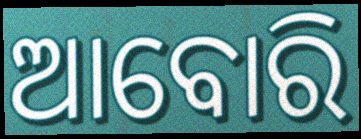
ଆବୋରି